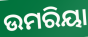
ଉମରିୟା